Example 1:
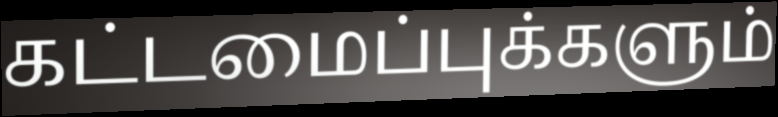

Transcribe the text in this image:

கட்டமைப்புக்களும்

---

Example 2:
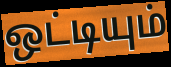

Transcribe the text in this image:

ஒட்டியும்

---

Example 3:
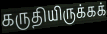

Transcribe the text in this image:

கருதியிருக்கக்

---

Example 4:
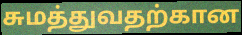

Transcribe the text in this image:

சுமத்துவதற்கான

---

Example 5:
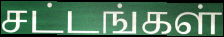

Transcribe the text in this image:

சட்டங்கள்